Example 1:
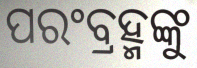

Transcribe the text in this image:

ପରଂବ୍ରହ୍ମଙ୍କୁ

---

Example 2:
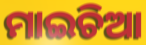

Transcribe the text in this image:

ମାଇଚିଆ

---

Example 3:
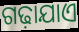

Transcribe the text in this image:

ଗଢ଼ାଯାଏ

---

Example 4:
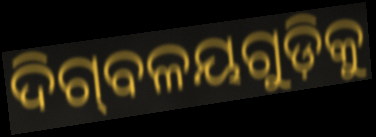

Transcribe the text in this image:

ଦିଗ୍‌ବଳୟଗୁଡ଼ିକୁ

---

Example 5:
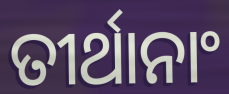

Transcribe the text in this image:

ତୀର୍ଥାନାଂ